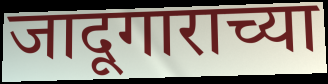
जादूगाराच्या